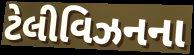
ટેલીવિઝનના